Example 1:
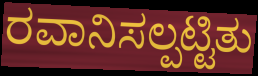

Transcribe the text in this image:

ರವಾನಿಸಲ್ಪಟ್ಟಿತು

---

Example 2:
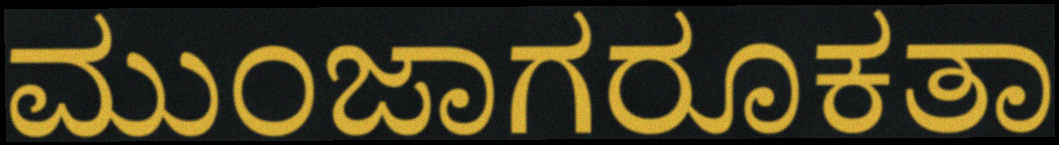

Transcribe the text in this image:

ಮುಂಜಾಗರೂಕತಾ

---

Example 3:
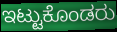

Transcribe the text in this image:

ಇಟ್ಟುಕೊಂಡರು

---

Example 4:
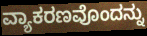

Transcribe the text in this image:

ವ್ಯಾಕರಣವೊಂದನ್ನು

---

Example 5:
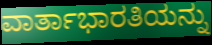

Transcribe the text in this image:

ವಾರ್ತಾಭಾರತಿಯನ್ನು